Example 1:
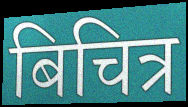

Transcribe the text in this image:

बिचित्र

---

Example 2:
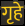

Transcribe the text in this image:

गृहे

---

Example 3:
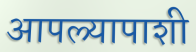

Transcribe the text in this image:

आपल्यापाशी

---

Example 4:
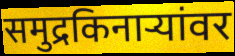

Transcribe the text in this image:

समुद्रकिनाऱ्यांवर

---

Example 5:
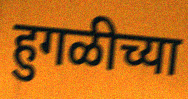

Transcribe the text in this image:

हुगळीच्या